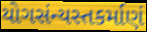
યોગસંન્યસ્તકર્માણં